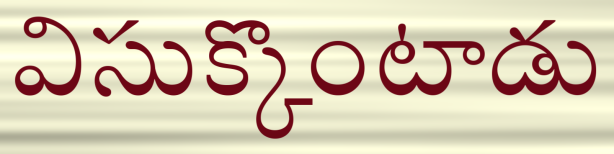
విసుక్కొంటాడు